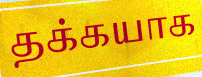
தக்கயாக